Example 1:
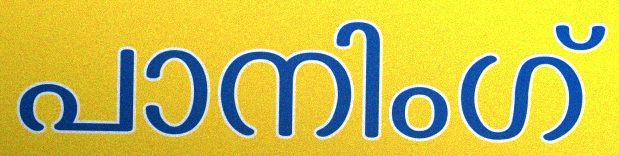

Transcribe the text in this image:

പാനിംഗ്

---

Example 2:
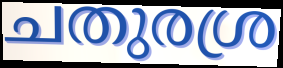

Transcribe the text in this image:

ചതുരശ്ര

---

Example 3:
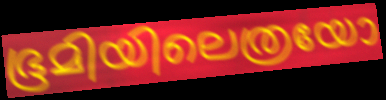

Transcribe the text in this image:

ഭൂമിയിലെത്രയോ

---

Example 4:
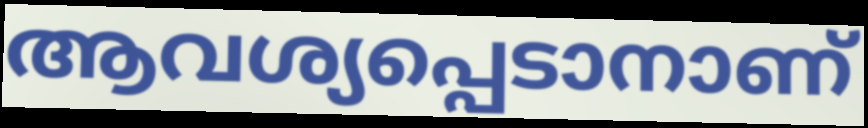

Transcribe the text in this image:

ആവശ്യപ്പെടാനാണ്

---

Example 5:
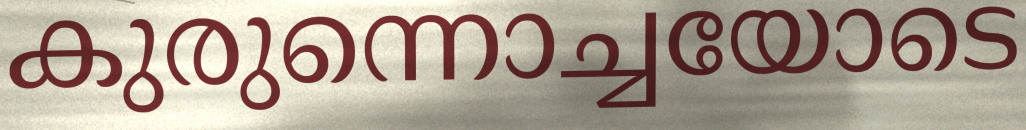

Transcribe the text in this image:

കുരുന്നൊച്ചയോടെ